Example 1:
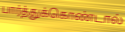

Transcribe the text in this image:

பார்த்துக்கொண்டால்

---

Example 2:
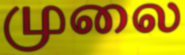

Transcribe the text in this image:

முலை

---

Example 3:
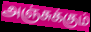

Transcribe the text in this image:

அஞ்சுக்கும்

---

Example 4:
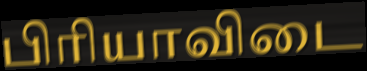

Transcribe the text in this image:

பிரியாவிடை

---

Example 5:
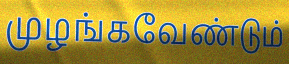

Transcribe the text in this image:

முழங்கவேண்டும்